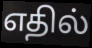
எதில்